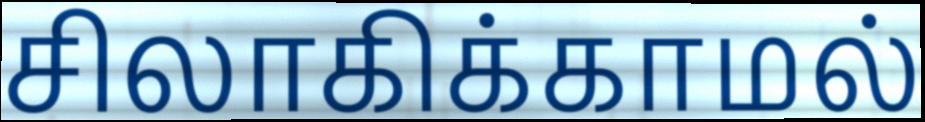
சிலாகிக்காமல்